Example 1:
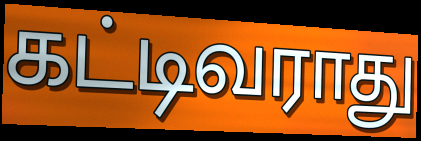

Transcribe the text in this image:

கட்டிவராது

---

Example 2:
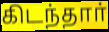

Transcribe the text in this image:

கிடந்தார்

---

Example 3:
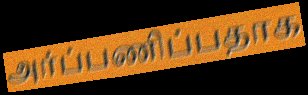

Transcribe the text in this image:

அர்ப்பணிப்பதாக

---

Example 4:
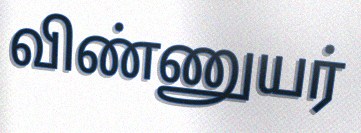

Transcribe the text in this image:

விண்ணுயர்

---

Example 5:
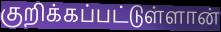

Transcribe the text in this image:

குறிக்கப்பட்டுள்ளான்